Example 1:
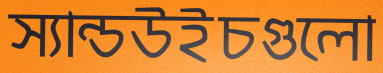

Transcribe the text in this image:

স্যান্ডউইচগুলো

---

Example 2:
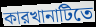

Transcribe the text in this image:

কারখানাটিতে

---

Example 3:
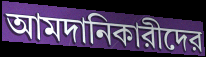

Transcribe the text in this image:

আমদানিকারীদের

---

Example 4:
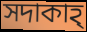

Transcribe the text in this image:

সদাকাহ্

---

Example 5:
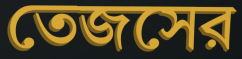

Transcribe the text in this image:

তেজসের